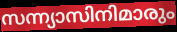
സന്ന്യാസിനിമാരും